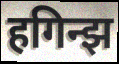
हगिन्झ